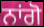
ਨਾਂਗੋ